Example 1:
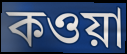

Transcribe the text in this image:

কওয়া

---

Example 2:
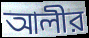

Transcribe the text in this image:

আলীর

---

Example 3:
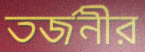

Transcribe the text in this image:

তর্জনীর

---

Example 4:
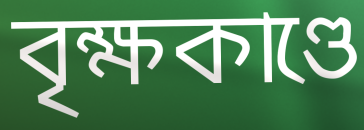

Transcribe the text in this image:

বৃক্ষকাণ্ডে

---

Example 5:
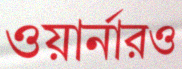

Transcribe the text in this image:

ওয়ার্নারও